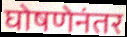
घोषणेनंतर